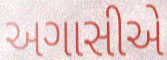
અગાસીએ